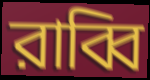
রাব্বি